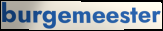
burgemeester